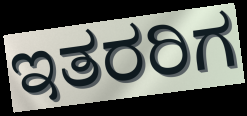
ಇತರರಿಗ